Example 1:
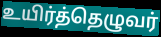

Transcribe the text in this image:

உயிர்த்தெழுவர்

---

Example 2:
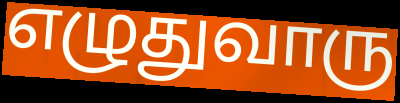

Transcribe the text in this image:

எழுதுவாரு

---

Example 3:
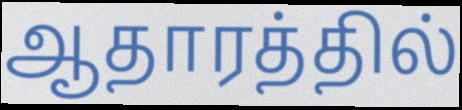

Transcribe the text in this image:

ஆதாரத்தில்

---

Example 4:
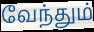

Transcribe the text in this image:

வேந்தும்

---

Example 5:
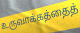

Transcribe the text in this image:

உருவாக்கத்தைத்